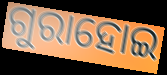
ଗୁରାହୋଇ